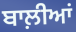
ਬਾਲ਼ੀਆਂ